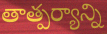
తాత్పర్యాన్ని